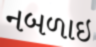
નબળાઇ